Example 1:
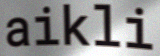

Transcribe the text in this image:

aikli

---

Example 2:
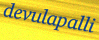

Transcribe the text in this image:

devulapalli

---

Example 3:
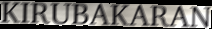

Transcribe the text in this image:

KIRUBAKARAN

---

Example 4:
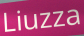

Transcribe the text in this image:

Liuzza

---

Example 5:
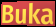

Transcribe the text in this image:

Buka